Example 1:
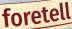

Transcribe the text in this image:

foretell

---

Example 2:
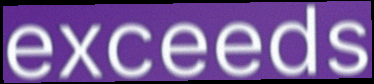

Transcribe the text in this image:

exceeds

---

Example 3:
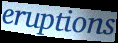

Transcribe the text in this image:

eruptions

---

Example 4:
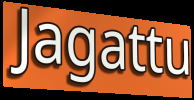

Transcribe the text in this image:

Jagattu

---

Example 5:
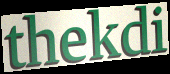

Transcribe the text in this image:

thekdi